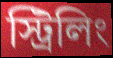
স্ট্রিলিং